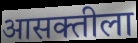
आसक्तीला